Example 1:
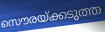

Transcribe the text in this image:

സൌരയ്ക്കടുത്ത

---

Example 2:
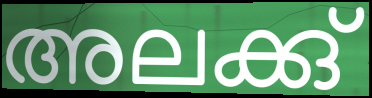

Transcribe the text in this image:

അലക്കു്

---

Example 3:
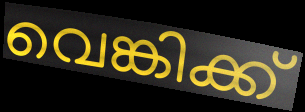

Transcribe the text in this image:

വെങ്കിക്ക്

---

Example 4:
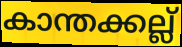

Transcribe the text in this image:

കാന്തക്കല്ല്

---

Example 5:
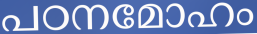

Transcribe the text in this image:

പഠനമോഹം